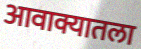
आवाक्यातला